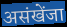
असंखेंजा